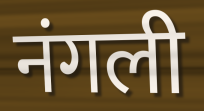
नंगली